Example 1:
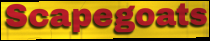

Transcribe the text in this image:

Scapegoats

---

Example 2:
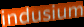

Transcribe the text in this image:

indusium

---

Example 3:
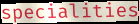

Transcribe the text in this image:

specialities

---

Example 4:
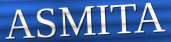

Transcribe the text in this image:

ASMITA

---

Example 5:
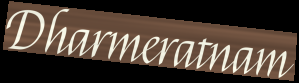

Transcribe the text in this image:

Dharmeratnam